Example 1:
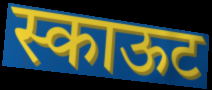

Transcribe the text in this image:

स्काऊट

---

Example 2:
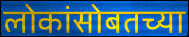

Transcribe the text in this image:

लोकांसोबतच्या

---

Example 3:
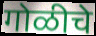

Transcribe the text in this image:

गोळीचे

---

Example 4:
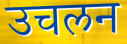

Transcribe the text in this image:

उचलन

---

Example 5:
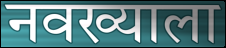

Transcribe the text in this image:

नवख्याला